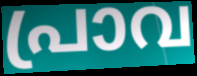
പ്രാവ